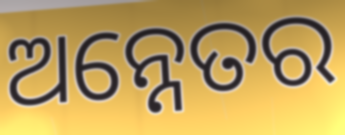
ଅନ୍ନେତର